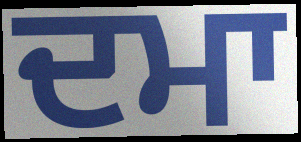
ਦਮਾ